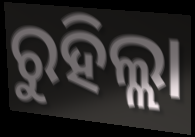
ରୁହିଲ୍ଲା